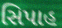
સિપાહ